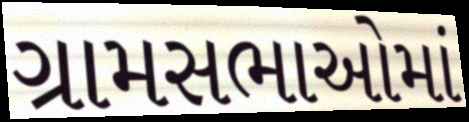
ગ્રામસભાઓમાં